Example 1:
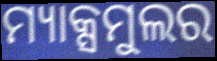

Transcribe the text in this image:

ମ୍ୟାକ୍ସମୁଲର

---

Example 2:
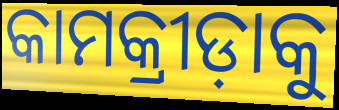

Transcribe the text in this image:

କାମକ୍ରୀଡ଼ାକୁ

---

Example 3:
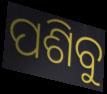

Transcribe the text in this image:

ପଶିବୁ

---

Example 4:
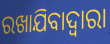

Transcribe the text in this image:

ରଖାଯିବାଦ୍ଵାରା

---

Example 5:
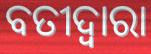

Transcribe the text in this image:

ବତୀଦ୍ୱାରା